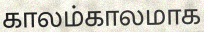
காலம்காலமாக